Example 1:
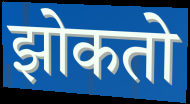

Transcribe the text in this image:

झोकतो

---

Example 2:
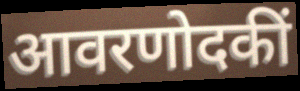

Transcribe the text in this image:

आवरणोदकीं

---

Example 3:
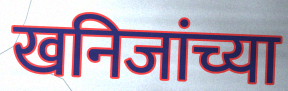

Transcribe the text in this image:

खनिजांच्या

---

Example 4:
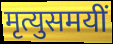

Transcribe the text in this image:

मृत्युसमयीं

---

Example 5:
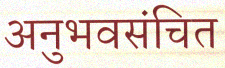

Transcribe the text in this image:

अनुभवसंचित